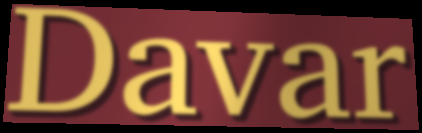
Davar